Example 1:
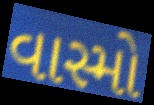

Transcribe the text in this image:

વાસ્મો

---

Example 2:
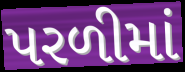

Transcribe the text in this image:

પરળીમાં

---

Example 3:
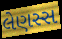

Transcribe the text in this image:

લેણસ્સ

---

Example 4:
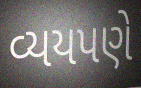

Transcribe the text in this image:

વ્યયપણે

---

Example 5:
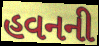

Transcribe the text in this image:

હવનની